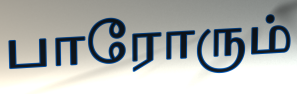
பாரோரும்